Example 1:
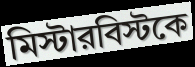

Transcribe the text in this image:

মিস্টারবিস্টকে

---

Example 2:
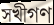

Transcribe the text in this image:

সখীগণ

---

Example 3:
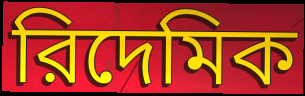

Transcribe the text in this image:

রিদেমিক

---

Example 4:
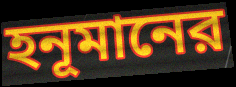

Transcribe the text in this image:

হনূমানের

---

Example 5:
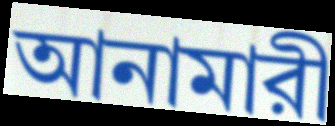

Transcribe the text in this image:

আনামারী